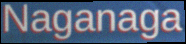
Naganaga